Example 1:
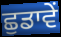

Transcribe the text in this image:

ਛੁਡਾਵੇਂ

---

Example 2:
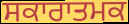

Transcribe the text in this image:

ਸਕਾਰਾਤਮਕ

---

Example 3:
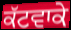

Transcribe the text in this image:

ਕੱਟਵਾਕੇ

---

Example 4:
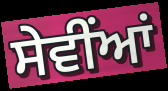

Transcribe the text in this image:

ਸੇਵੀਂਆਂ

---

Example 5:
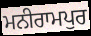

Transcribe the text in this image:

ਮਨੀਰਾਮਪੁਰ